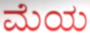
ಮೆಯ